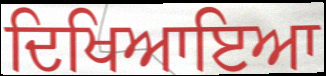
ਦਿਖਿਆਇਆ